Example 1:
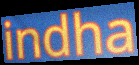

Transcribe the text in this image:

indha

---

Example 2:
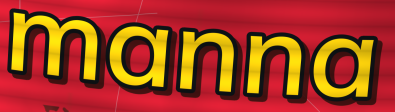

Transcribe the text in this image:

manna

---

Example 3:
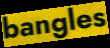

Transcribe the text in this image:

bangles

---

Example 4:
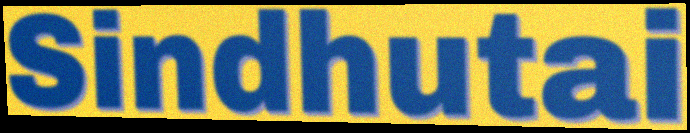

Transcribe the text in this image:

Sindhutai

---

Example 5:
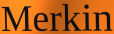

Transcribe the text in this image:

Merkin